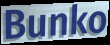
Bunko